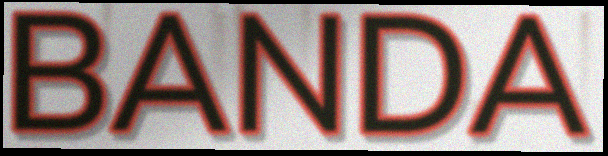
BANDA